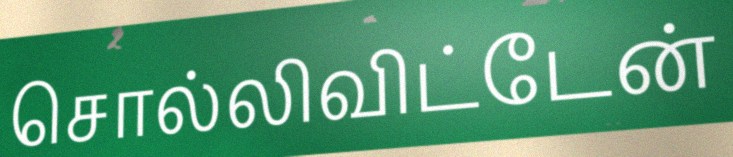
சொல்லிவிட்டேன்